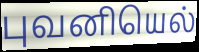
புவனியெல்